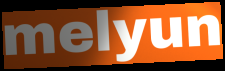
melyun